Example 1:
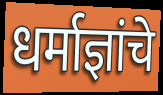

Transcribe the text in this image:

धर्माज्ञांचे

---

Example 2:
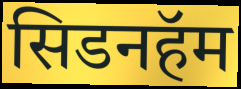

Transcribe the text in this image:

सिडनहॅम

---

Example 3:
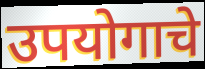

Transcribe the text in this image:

उपयोगाचे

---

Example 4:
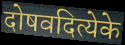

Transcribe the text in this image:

दोषवदित्येके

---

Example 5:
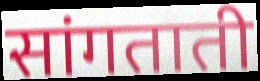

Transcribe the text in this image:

सांगताती